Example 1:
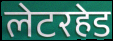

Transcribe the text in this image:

लेटरहेड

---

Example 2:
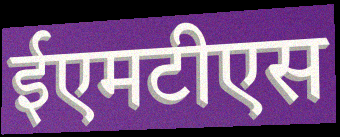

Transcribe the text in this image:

ईएमटीएस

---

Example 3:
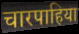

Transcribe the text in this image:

चारपाहिया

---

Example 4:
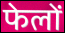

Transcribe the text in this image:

फेलों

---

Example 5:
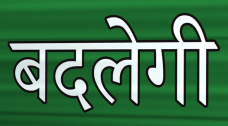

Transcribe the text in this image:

बदलेगी